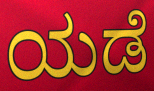
ಯಡೆ